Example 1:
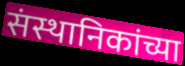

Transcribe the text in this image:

संस्थानिकांच्या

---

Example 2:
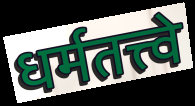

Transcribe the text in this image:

धर्मतत्त्वे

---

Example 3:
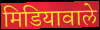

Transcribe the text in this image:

मिडियावाले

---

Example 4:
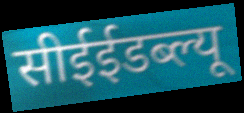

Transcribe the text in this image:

सीईईडब्ल्यू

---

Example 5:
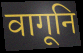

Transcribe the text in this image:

वागूनि